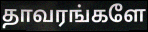
தாவரங்களே